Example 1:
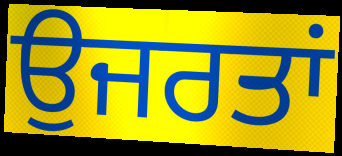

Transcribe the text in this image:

ਉਜਰਤਾਂ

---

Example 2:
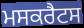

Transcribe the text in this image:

ਮਸਕਰੈਟਸ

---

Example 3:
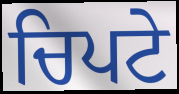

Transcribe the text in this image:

ਚਿਪਟੇ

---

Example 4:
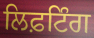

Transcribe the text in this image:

ਲਿਫ਼ਟਿੰਗ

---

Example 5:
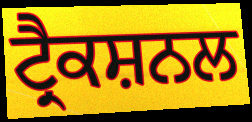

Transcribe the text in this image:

ਟ੍ਰੈਕਸ਼ਨਲ